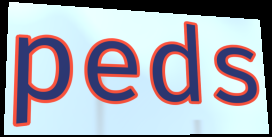
peds